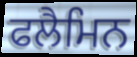
ਫਲੈਮਿਨ